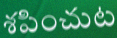
శపించుట